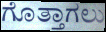
ಗೊತ್ತಾಗಲು